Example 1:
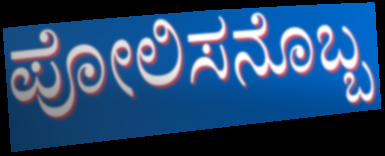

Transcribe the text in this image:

ಪೋಲಿಸನೊಬ್ಬ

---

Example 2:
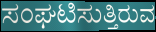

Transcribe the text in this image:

ಸಂಘಟಿಸುತ್ತಿರುವ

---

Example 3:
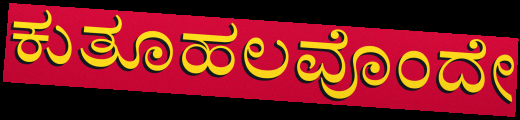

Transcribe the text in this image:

ಕುತೂಹಲವೊಂದೇ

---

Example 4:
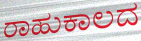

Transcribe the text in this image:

ರಾಹುಕಾಲದ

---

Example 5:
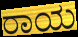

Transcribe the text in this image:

ರಾಯ